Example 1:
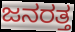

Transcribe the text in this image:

ಜನರತ್ತ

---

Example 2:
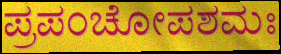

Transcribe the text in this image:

ಪ್ರಪಂಚೋಪಶಮಃ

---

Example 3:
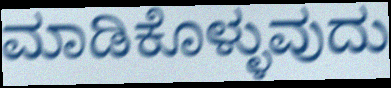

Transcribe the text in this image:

ಮಾಡಿಕೊಳ್ಳುವುದು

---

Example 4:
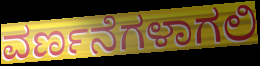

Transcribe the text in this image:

ವರ್ಣನೆಗಳಾಗಲಿ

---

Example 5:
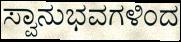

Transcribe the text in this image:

ಸ್ವಾನುಭವಗಳಿಂದ